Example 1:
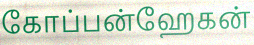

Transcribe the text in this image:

கோப்பன்ஹேகன்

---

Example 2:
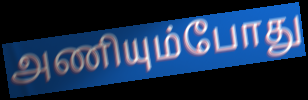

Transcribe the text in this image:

அணியும்போது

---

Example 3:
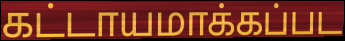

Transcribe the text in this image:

கட்டாயமாக்கப்பட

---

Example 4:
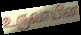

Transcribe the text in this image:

உருவாயின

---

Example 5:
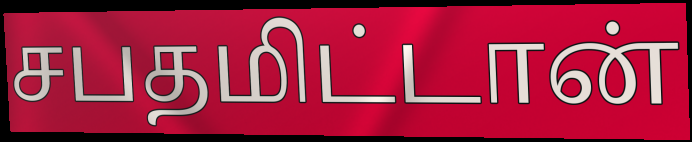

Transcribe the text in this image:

சபதமிட்டான்